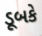
ડૂબકે